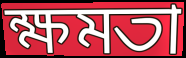
ক্ষমতা